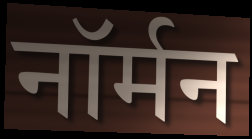
नॉर्मन